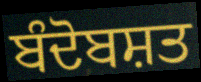
ਬੰਦੋਬਸ਼ਤ